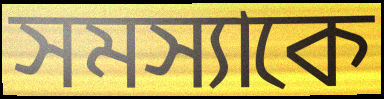
সমস্যাকে